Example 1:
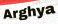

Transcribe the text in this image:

Arghya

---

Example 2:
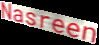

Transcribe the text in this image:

Nasreen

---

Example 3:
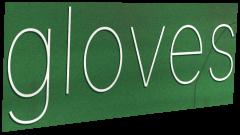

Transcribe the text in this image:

gloves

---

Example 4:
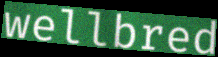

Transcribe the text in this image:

wellbred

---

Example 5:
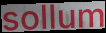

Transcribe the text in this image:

sollum